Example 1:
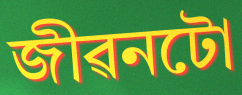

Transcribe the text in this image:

জীৱনটো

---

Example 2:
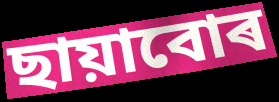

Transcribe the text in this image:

ছায়াবোৰ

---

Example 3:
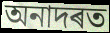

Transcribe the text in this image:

অনাদৰত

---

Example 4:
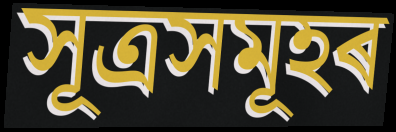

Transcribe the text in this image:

সূত্ৰসমূহৰ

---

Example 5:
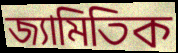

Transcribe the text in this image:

জ্যামিতিক